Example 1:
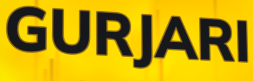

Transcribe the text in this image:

GURJARI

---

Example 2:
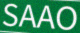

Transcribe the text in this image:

SAAO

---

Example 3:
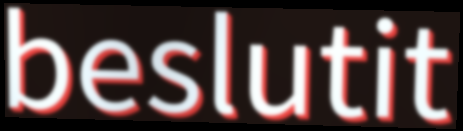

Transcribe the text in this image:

beslutit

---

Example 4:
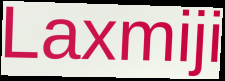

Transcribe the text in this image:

Laxmiji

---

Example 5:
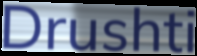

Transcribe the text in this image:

Drushti